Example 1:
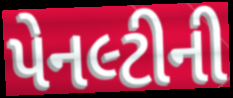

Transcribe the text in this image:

પેનલ્ટીની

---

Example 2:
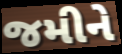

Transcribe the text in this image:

જમીને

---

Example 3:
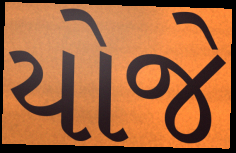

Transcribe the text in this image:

યોજે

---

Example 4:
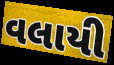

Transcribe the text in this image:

વલાયી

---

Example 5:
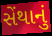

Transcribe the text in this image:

સેંથાનું